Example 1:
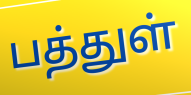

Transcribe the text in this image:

பத்துள்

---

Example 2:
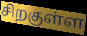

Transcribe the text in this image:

சிறகுள்ள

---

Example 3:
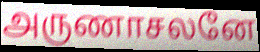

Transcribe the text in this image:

அருணாசலனே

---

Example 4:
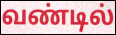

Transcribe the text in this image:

வண்டில்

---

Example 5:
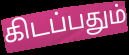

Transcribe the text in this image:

கிடப்பதும்